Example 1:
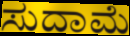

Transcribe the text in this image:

ಸುದಾಮೆ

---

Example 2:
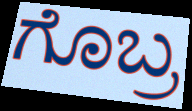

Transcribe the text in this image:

ಗೊಬ್ರ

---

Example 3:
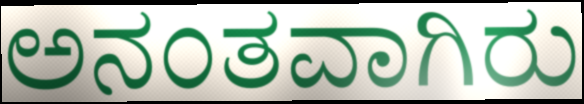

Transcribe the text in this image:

ಅನಂತವಾಗಿರು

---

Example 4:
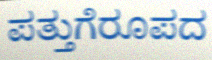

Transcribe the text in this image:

ಪತ್ತುಗೆರೂಪದ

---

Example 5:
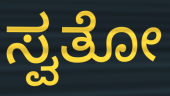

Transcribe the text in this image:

ಸ್ವತೋ